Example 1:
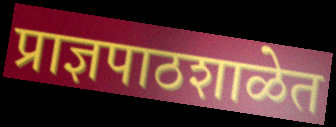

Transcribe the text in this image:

प्राज्ञपाठशाळेत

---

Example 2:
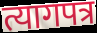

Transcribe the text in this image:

त्यागपत्र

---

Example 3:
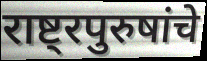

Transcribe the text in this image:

राष्ट्रपुरुषांचे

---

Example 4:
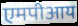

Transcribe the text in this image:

एमपीआय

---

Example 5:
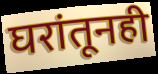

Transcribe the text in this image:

घरांतूनही